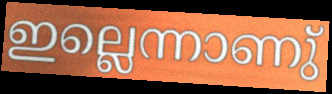
ഇല്ലെന്നാണു്